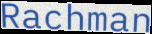
Rachman